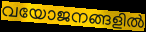
വയോജനങ്ങളിൽ